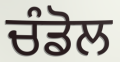
ਚੰਡੋਲ